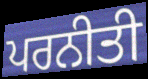
ਪਰਨੀਤੀ